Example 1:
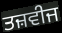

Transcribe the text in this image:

ਤਜ਼ਵੀਜ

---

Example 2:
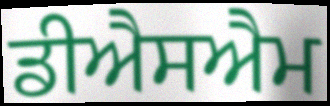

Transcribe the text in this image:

ਡੀਐਸਐਮ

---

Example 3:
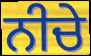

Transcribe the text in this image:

ਨੀਚੇ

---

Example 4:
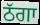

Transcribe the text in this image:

ਠੱਗਾ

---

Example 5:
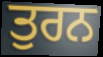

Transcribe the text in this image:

ਤੁਰਨ